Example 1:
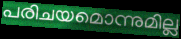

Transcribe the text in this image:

പരിചയമൊന്നുമില്ല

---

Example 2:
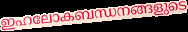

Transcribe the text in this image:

ഇഹലോകബന്ധനങ്ങളുടെ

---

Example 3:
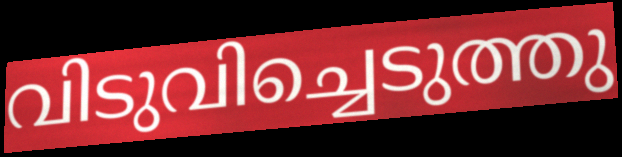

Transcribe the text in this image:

വിടുവിച്ചെടുത്തു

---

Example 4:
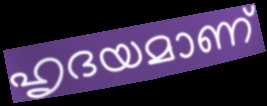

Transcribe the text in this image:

ഹൃദയമാണ്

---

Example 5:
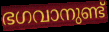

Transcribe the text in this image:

ഭഗവാനുണ്ട്